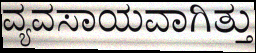
ವ್ಯವಸಾಯವಾಗಿತ್ತು